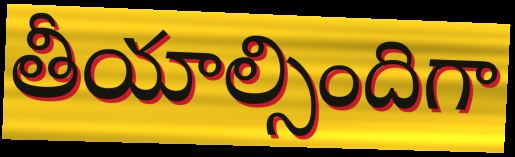
తీయాల్సిందిగా